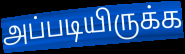
அப்படியிருக்க